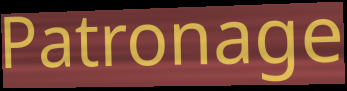
Patronage